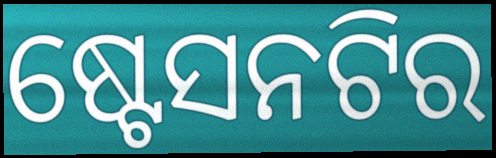
ଷ୍ଟେସନଟିର